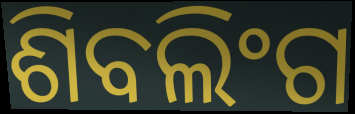
ଶିବଲିଂଗ